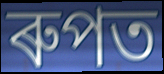
ৰুপত